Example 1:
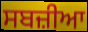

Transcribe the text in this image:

ਸਬਜ਼ੀਆ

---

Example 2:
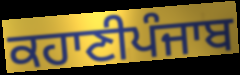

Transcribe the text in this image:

ਕਹਾਣੀਪੰਜਾਬ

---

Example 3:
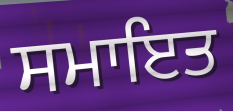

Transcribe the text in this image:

ਸਮਾਇਤ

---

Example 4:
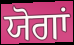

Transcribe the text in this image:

ਯੋਗਾਂ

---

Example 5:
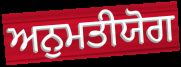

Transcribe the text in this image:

ਅਨੁਮਤੀਯੋਗ